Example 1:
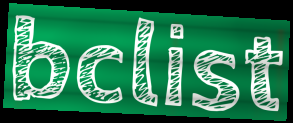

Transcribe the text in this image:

bclist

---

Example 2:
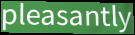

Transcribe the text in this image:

pleasantly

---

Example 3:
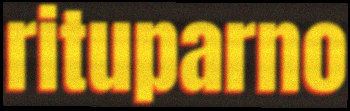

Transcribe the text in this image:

rituparno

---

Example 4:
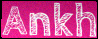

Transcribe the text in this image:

Ankh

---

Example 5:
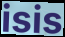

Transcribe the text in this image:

isis